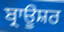
ਬ੍ਰਾਊਸ਼ਰ